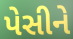
પેસીને